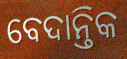
ବେଦାନ୍ତିକ